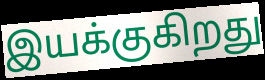
இயக்குகிறது